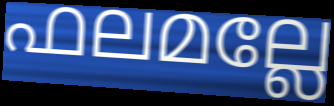
ഫലമല്ലേ